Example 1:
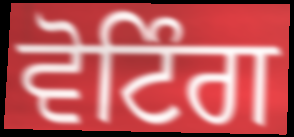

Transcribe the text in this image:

ਵੋਟਿੰਗ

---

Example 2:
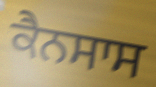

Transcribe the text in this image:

ਕੈਨਸਾਸ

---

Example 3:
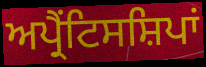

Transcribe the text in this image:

ਅਪ੍ਰੈਂਟਿਸਸ਼ਿਪਾਂ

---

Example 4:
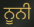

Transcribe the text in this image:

ਨੂਨੀ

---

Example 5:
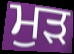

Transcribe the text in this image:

ਮੁੜ